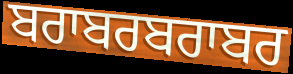
ਬਰਾਬਰਬਰਾਬਰ